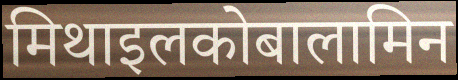
मिथाइलकोबालामिन